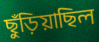
ছুঁড়িয়াছিল